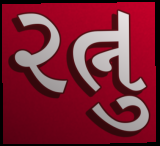
રત્નુ